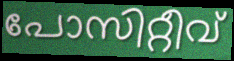
പോസിറ്റീവ്